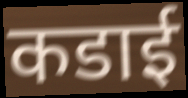
कडाई